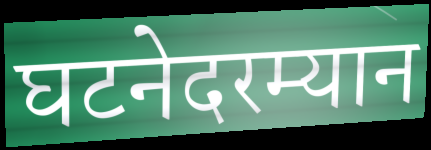
घटनेदरम्यान